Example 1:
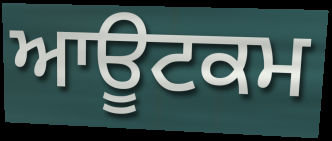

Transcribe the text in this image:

ਆਊਟਕਮ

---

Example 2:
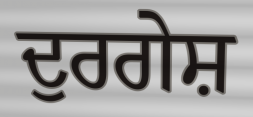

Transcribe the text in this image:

ਦੁਰਗੇਸ਼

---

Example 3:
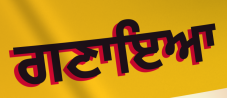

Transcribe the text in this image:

ਗਣਾਇਆ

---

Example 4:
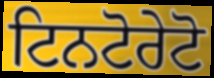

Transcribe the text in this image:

ਟਿਨਟੋਰੇਟੋ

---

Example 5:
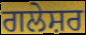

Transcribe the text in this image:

ਗਲੇਸ਼ਰ